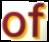
of